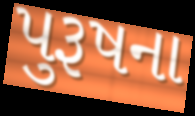
પુરૂષના